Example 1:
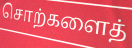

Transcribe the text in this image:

சொற்களைத்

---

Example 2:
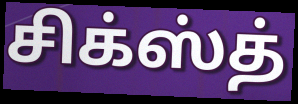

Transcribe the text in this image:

சிக்ஸ்த்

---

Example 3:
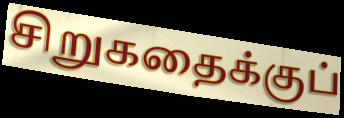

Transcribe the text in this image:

சிறுகதைக்குப்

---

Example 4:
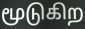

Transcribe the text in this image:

மூடுகிற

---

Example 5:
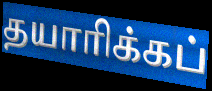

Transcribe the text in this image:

தயாரிக்கப்